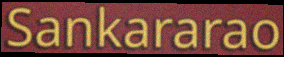
Sankararao